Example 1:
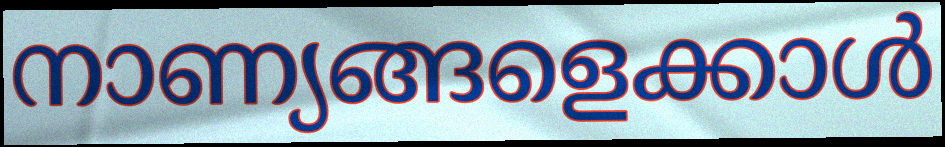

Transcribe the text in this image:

നാണ്യങ്ങളെക്കാൾ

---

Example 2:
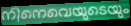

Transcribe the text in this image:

നിനെവെയുടെയും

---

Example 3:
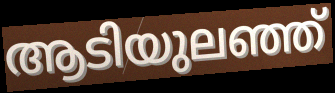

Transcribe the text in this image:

ആടിയുലഞ്ഞ്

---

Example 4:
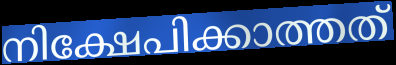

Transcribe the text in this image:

നിക്ഷേപിക്കാത്തത്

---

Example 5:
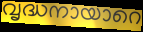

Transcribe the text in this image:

വൃദ്ധനായാറെ